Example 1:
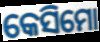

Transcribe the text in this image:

କେସିମୋ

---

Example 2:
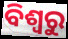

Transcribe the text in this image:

ବିଶ୍ଵରୁ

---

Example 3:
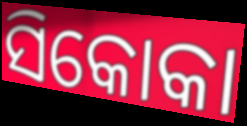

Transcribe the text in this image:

ସିକୋକା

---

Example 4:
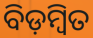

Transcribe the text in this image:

ବିଡ଼ମ୍ଵିତ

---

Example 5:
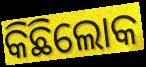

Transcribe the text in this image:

କିଛିଲୋକ